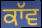
ਕਾੱਵ